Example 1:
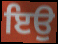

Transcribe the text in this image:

ਇਉ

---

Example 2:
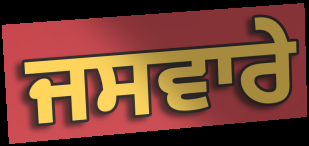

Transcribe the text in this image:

ਜਸਵਾਰੇ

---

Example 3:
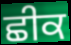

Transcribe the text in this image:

ਛੀਕ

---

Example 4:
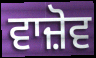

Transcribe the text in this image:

ਵਾਜ਼ੋਵ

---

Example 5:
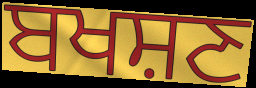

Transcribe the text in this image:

ਬਖਸ਼ਣ